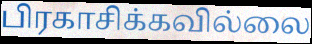
பிரகாசிக்கவில்லை